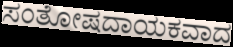
ಸಂತೋಷದಾಯಕವಾದ